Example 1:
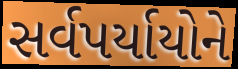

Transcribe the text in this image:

સર્વપર્યાયોને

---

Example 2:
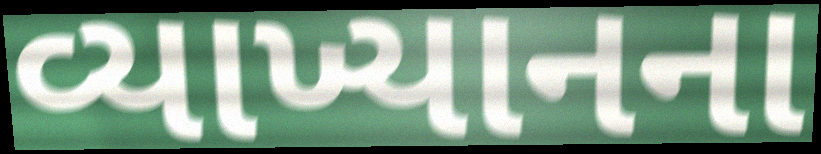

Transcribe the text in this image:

વ્યાખ્યાનના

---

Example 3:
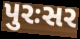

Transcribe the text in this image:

પુરઃસર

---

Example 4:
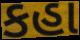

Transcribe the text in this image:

કહા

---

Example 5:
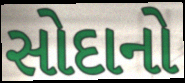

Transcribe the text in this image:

સોદાનો